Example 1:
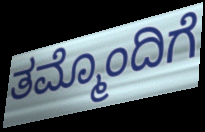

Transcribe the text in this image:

ತಮ್ಮೊಂದಿಗೆ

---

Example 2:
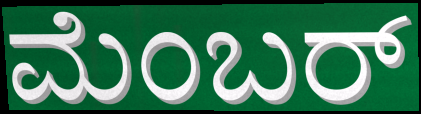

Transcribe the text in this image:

ಮೆಂಬರ್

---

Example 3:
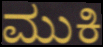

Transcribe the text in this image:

ಮುಕಿ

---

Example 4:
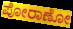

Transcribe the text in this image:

ಪೋರಾಣೋ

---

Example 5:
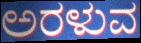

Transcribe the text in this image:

ಅರಳುವ